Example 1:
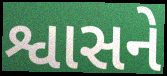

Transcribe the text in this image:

શ્વાસને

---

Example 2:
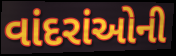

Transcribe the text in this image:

વાંદરાંઓની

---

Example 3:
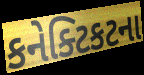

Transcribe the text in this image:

કનેક્ટિકટના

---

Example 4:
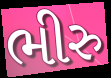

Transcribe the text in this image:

ભીરુ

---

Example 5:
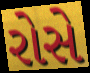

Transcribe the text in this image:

રોસે